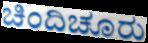
ಚಿಂದಿಚೂರು